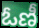
ఓణీ